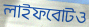
লাইফবোটও